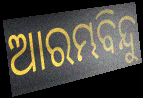
ଆରମ୍ଭବିନ୍ଦୁ